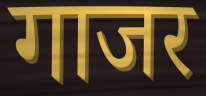
गाजर